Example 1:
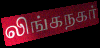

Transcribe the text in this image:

லிங்கநகர்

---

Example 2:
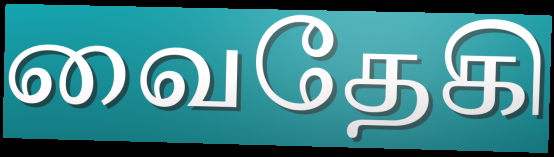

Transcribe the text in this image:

வைதேகி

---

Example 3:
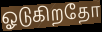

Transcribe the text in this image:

ஓடுகிறதோ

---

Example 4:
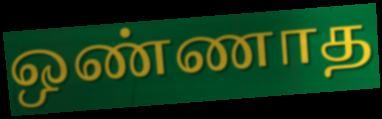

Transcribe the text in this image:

ஒண்ணாத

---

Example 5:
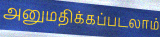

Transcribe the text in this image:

அனுமதிக்கப்படலாம்